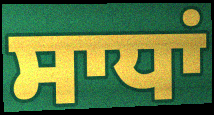
ਸਾਧਾਂ